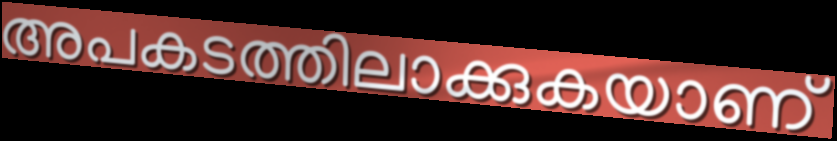
അപകടത്തിലാക്കുകയാണ്